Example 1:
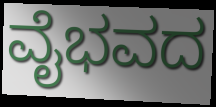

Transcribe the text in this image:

ವೈಭವದ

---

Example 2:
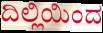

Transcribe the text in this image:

ದಿಲ್ಲಿಯಿಂದ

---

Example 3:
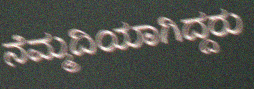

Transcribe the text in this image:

ನೆಮ್ಮದಿಯಾಗಿದ್ದರು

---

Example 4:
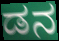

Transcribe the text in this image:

ಡನ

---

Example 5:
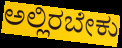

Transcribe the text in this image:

ಅಲ್ಲಿರಬೇಕು